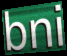
bni